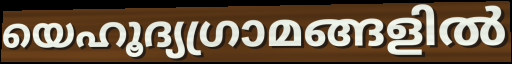
യെഹൂദ്യഗ്രാമങ്ങളിൽ